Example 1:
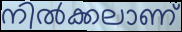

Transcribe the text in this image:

നിൽക്കലാണ്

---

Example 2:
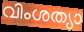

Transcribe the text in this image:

വിംശത്യാ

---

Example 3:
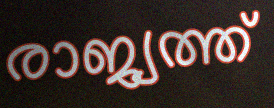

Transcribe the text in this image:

രാജ്യത്ത്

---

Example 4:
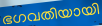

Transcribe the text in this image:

ഭഗവതിയായി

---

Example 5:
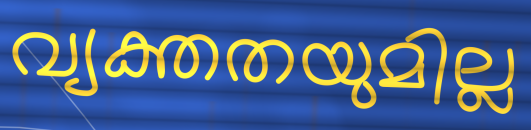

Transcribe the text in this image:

വ്യക്തതയുമില്ല